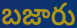
బజారు